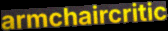
armchaircritic